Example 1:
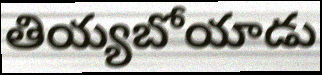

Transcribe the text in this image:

తియ్యబోయాడు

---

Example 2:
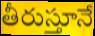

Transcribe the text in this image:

తీరుస్తూనే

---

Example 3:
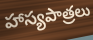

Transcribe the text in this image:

హాస్యపాత్రలు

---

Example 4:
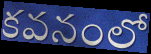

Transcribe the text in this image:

కవనంలో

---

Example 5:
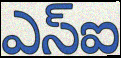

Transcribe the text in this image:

ఎస్ఐ